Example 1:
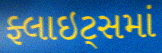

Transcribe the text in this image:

ફ્લાઇટ્સમાં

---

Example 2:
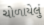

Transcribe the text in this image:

ચોળાયેલું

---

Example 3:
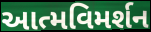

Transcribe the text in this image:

આત્મવિમર્શન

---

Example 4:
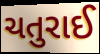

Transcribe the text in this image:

ચતુરાઈ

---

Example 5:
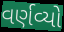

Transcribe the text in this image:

વર્ણવ્યો